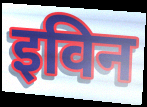
इविन